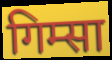
गिम्सा